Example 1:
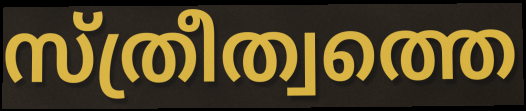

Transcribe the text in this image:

സ്ത്രീത്വത്തെ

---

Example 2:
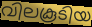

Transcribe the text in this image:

വിലകൂടിയ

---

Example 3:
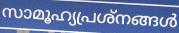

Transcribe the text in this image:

സാമൂഹ്യപ്രശ്നങ്ങൾ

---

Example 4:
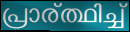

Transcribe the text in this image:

പ്രാര്ത്ഥിച്ച്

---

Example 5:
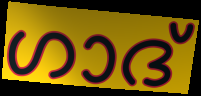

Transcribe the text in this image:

ഗാദ്